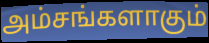
அம்சங்களாகும்